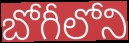
బోగీలోని